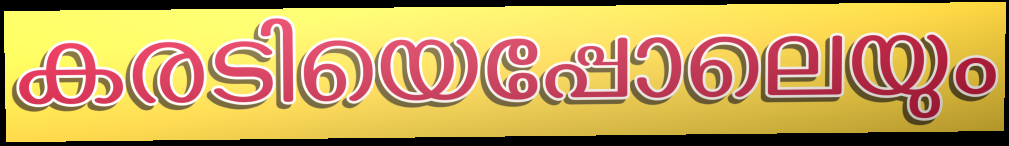
കരടിയെപ്പോലെയും